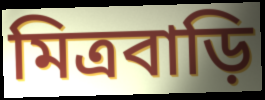
মিত্রবাড়ি